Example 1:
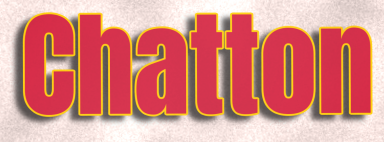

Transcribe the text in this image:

Chatton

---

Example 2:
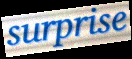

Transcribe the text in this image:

surprise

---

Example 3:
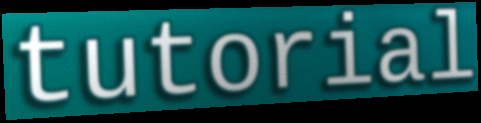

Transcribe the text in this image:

tutorial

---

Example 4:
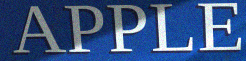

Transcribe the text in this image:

APPLE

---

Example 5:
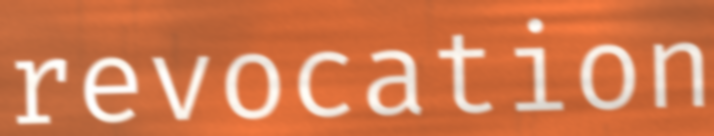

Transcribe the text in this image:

revocation